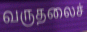
வருதலைச்